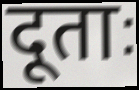
दूताः